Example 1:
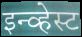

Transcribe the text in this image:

इन्व्हेस्ट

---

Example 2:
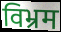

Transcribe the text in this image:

विभ्रम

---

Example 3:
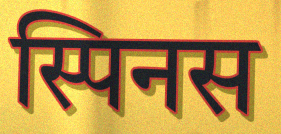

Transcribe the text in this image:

स्पिनस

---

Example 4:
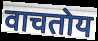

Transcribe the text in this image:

वाचतोय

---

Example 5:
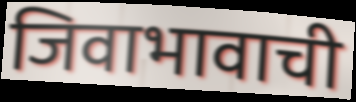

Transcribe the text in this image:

जिवाभावाची